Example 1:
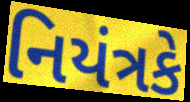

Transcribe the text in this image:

નિયંત્રકે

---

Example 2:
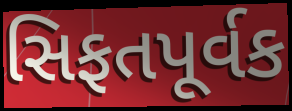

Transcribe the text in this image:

સિફતપૂર્વક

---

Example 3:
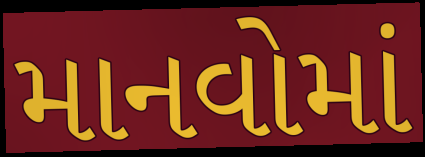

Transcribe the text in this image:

માનવોમાં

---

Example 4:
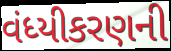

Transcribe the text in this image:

વંધ્યીકરણની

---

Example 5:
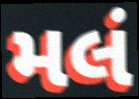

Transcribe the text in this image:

મલં